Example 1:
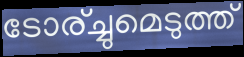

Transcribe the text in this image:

ടോര്ച്ചുമെടുത്ത്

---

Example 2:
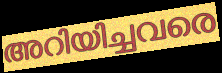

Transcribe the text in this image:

അറിയിച്ചവരെ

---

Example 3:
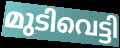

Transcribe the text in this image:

മുടിവെട്ടി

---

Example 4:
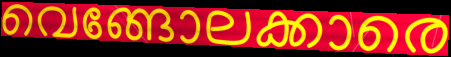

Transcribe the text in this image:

വെങ്ങോലക്കാരെ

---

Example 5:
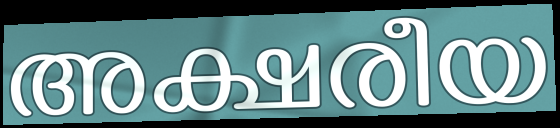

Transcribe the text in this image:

അക്ഷരീയ